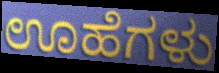
ಊಹೆಗಳು